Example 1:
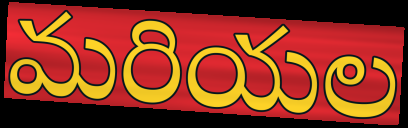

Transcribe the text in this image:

మరియల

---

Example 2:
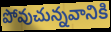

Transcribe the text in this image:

పోవుచున్నవానికి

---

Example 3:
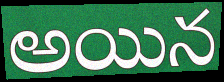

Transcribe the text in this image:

అయిన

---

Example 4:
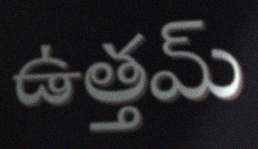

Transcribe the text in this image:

ఉత్తమ్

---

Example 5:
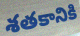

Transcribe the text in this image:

శతకానికి